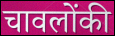
चावलोंकी